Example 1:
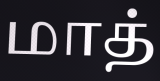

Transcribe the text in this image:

மாத்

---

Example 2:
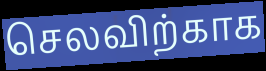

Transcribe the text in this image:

செலவிற்காக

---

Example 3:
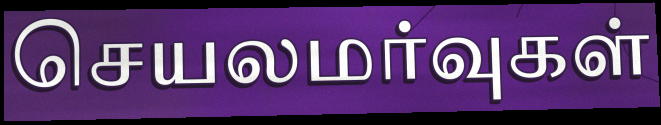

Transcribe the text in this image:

செயலமர்வுகள்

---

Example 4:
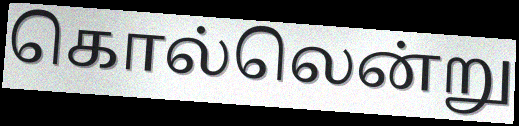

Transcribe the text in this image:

கொல்லென்று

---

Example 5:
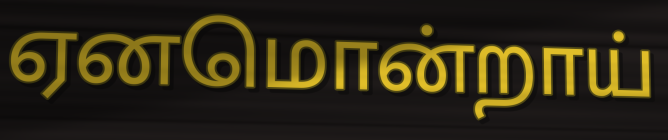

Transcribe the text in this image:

ஏனமொன்றாய்